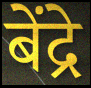
बेंद्रे